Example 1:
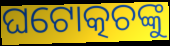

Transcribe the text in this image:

ଘଟୋତ୍କଚଙ୍କୁ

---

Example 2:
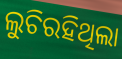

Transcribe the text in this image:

ଲୁଚିରହିଥିଲା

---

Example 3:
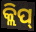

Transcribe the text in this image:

କ୍ଲିପ୍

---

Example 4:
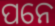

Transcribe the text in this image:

ପନେ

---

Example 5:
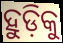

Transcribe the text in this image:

ହୁଡ଼ିକୁ